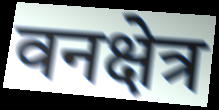
वनक्षेत्र